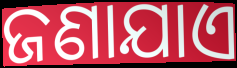
ଜଣାଯାଏ